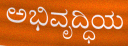
ಅಭಿವೃದ್ಧಿಯ